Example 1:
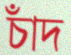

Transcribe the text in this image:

চাঁদ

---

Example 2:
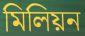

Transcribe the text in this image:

মিলিয়ন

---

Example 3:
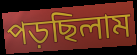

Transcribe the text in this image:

পড়ছিলাম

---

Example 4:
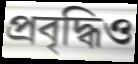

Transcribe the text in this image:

প্রবৃদ্ধিও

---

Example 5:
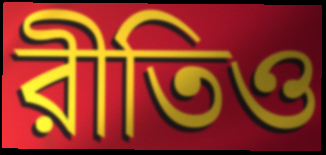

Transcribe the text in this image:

রীতিও